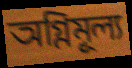
অগ্নিমূল্য